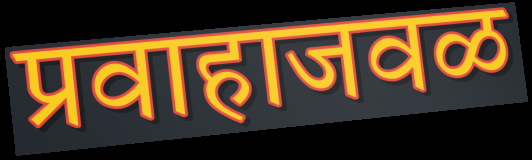
प्रवाहाजवळ